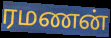
ரமணன்